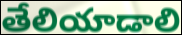
తేలియాడాలి